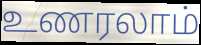
உணரலாம்